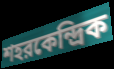
শহরকেন্দ্রিক